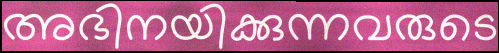
അഭിനയിക്കുന്നവരുടെ